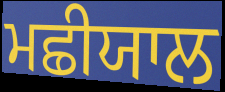
ਮਛੀਯਾਲ